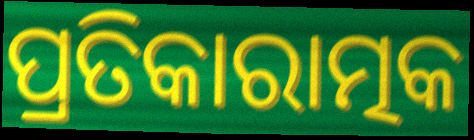
ପ୍ରତିକାରାତ୍ମକ